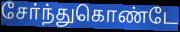
சேர்ந்துகொண்டே